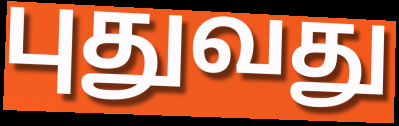
புதுவது